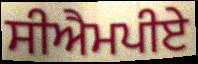
ਸੀਐਮਪੀਏ